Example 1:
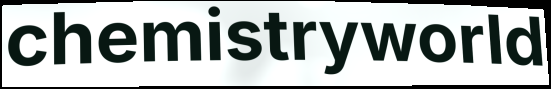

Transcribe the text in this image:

chemistryworld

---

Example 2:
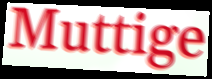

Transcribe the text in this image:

Muttige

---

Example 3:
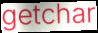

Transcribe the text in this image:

getchar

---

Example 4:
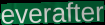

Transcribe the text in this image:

everafter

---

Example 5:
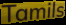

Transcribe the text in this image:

Tamils